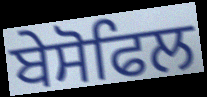
ਬੇਸੋਫਿਲ